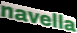
navella